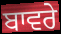
ਬਾਵਰੇ